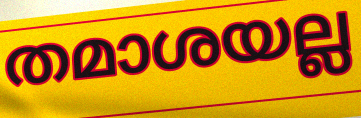
തമാശയല്ല